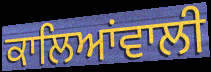
ਕਾਲਿਆਂਵਾਲੀ